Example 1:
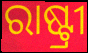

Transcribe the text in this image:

ରାଷ୍ଟ୍ରୀ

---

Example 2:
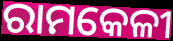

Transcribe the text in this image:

ରାମକେଳୀ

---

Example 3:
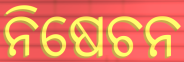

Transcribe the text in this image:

ନିଷେଚନ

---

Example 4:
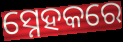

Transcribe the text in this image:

ସ୍ନେହକରେ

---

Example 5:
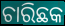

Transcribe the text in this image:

ଚାରିଛକ